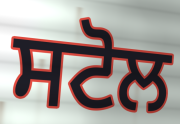
ਸਟੋਲ